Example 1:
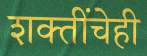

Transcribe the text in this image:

शक्तींचेही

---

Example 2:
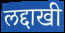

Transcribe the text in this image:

लद्दाखी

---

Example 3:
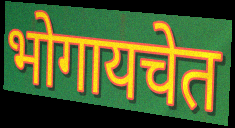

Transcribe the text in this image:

भोगायचेत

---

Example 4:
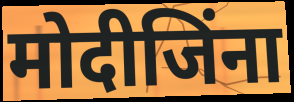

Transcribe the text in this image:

मोदीजिंना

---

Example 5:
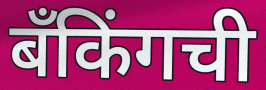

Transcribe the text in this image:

बँकिंगची